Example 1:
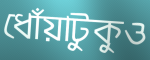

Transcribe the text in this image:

ধোঁয়াটুকুও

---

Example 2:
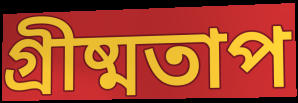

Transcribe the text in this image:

গ্রীষ্মতাপ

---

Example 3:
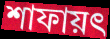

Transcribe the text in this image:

শাফায়ৎ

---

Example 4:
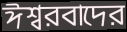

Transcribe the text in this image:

ঈশ্বরবাদের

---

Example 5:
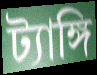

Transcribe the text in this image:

ট্যাঙ্গি